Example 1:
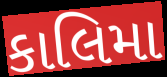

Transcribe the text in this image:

કાલિમા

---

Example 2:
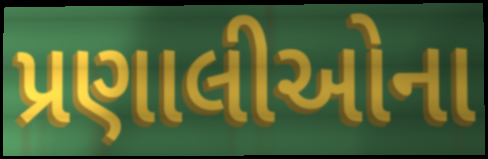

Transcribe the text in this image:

પ્રણાલીઓના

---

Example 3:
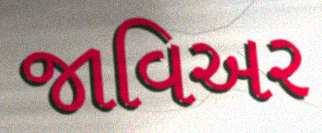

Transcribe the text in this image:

જાવિઅર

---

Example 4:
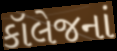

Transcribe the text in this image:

કૉલેજનાં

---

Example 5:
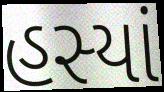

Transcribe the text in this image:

હસ્યાં